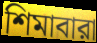
শিমাবারা